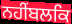
ਨਹੀਂਬਲਕਿ